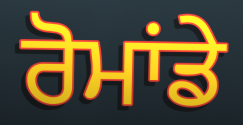
ਰੋਮਾਂਡੇ